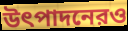
উৎপাদনেরও